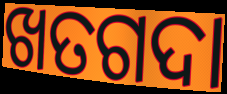
ଖତଗଦା